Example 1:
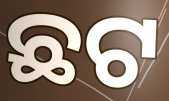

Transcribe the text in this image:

ଛଟ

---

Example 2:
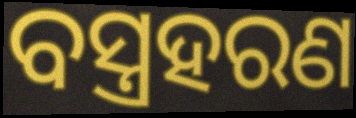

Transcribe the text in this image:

ବସ୍ତ୍ରହରଣ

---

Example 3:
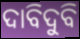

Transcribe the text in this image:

ଦାବିଦୁବି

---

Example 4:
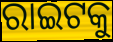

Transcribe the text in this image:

ରାଇଟକୁ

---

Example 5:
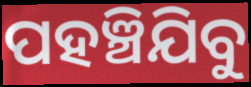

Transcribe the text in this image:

ପହଞ୍ଚିଯିବୁ